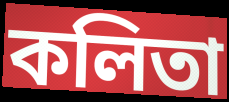
কলিতা